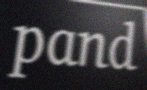
pand